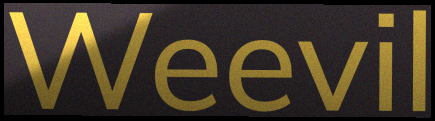
Weevil